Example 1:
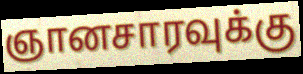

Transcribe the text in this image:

ஞானசாரவுக்கு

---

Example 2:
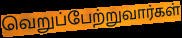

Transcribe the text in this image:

வெறுப்பேற்றுவார்கள்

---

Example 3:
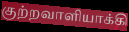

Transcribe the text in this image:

குற்றவாளியாக்கி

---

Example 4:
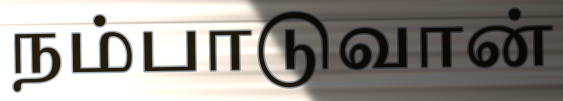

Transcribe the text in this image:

நம்பாடுவான்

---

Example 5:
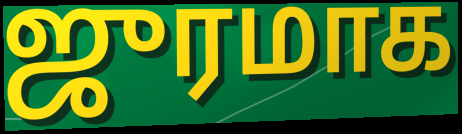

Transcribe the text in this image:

ஜுரமாக